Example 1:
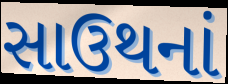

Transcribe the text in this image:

સાઉથનાં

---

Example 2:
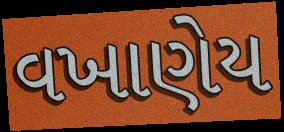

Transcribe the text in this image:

વખાણેય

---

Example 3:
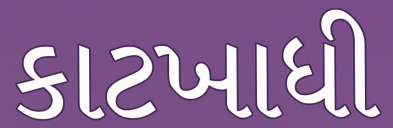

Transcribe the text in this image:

કાટખાધી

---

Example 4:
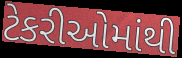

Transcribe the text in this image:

ટેકરીઓમાંથી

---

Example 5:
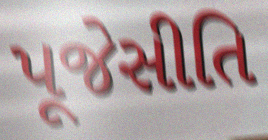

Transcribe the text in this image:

પૂજેસીતિ